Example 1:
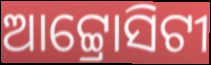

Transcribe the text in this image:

ଆଟ୍ଟ୍ରୋସିଟୀ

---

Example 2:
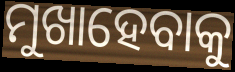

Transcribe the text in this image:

ମୁଖାହେବାକୁ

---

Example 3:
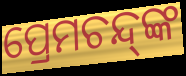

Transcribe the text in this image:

ପ୍ରେମଚନ୍ଦ୍‌ଙ୍କ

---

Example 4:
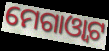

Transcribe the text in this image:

ମେଗାଓ୍ୱାଟ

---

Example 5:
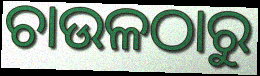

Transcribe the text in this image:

ଚାଉଳଠାରୁ